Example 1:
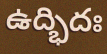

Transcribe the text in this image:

ఉద్భిదః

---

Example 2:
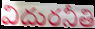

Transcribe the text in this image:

విదురనీతి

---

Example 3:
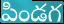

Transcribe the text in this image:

పిండగ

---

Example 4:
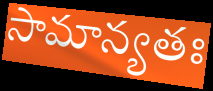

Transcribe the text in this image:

సామాన్యతః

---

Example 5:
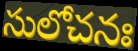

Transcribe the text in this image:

సులోచనః